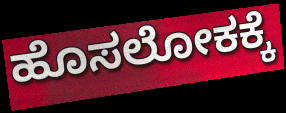
ಹೊಸಲೋಕಕ್ಕೆ